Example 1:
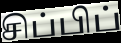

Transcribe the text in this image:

சிப்பிப்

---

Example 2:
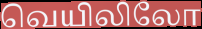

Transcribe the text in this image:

வெயிலிலோ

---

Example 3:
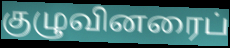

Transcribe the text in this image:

குழுவினரைப்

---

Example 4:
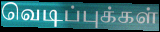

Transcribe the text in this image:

வெடிப்புக்கள்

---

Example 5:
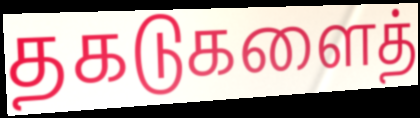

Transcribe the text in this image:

தகடுகளைத்